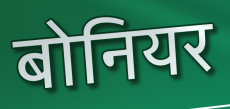
बोनियर